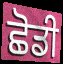
ਛੋਡੀ